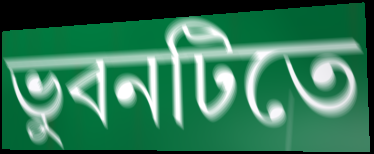
ভুবনটিতে